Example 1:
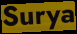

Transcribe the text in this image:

Surya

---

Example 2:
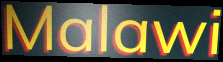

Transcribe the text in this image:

Malawi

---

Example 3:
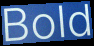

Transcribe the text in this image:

Bold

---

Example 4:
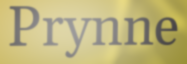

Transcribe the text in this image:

Prynne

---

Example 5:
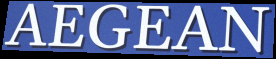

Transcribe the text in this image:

AEGEAN